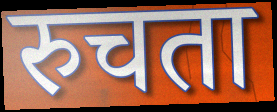
रुचता